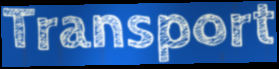
Transport